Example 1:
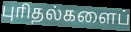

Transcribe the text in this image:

புரிதல்களைப்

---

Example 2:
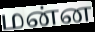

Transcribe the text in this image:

மன்ன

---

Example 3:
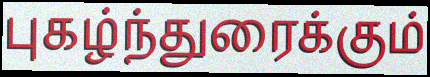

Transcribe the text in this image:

புகழ்ந்துரைக்கும்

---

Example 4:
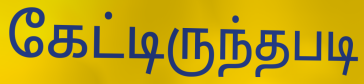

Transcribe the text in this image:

கேட்டிருந்தபடி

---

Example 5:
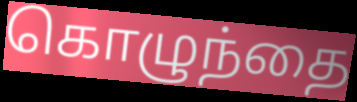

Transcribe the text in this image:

கொழுந்தை